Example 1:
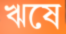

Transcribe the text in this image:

ঋষে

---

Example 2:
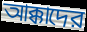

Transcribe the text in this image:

আক্কাদের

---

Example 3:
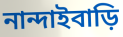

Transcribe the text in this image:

নান্দাইবাড়ি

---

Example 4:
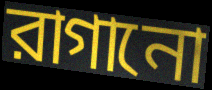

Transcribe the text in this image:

রাগানো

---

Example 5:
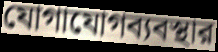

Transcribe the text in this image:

যোগাযোগব্যবস্থার